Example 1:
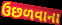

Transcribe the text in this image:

ઉછળવાના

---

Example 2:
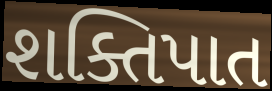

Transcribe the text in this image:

શક્તિપાત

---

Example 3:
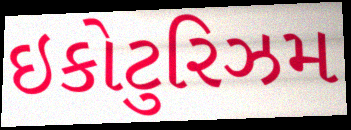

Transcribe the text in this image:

ઇકોટુરિઝમ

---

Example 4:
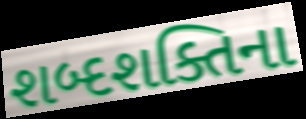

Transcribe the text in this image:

શબ્દશક્તિના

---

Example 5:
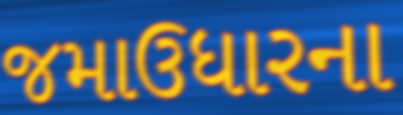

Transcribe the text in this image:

જમાઉધારના